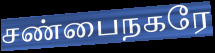
சண்பைநகரே